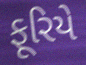
ફૂરિયે